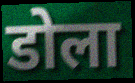
डोला